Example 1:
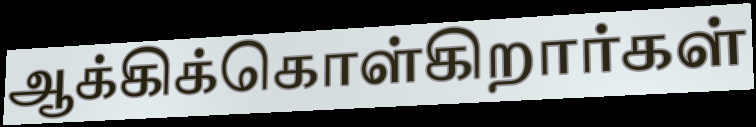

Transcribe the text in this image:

ஆக்கிக்கொள்கிறார்கள்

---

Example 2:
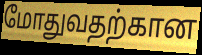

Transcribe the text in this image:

மோதுவதற்கான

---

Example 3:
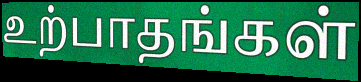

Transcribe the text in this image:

உற்பாதங்கள்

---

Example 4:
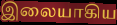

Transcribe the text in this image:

இலையாகிய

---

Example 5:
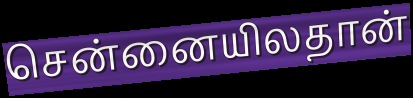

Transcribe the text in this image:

சென்னையிலதான்